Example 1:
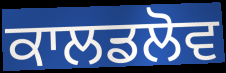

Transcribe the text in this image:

ਕਾਲਡਲੋਵ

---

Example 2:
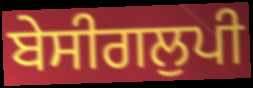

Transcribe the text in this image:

ਬੇਸੀਗਲੁਪੀ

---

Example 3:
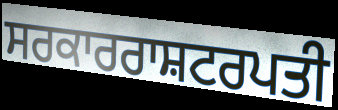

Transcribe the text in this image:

ਸਰਕਾਰਰਾਸ਼ਟਰਪਤੀ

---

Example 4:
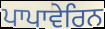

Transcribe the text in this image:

ਪਾਪਾਵੇਰਿਨ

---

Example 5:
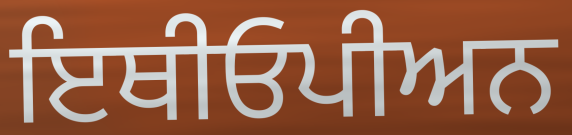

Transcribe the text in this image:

ਇਥੀਓਪੀਅਨ